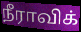
நீராவிக்